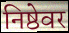
निष्ठेवर